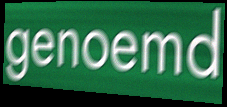
genoemd